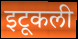
इटूकली